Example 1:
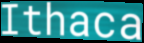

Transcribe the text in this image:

Ithaca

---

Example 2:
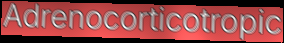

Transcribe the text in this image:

Adrenocorticotropic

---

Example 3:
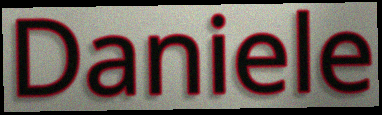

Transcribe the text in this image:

Daniele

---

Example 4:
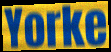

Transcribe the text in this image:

Yorke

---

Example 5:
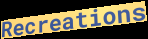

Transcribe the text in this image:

Recreations